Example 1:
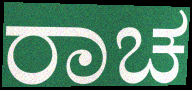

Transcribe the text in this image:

ರಾಚ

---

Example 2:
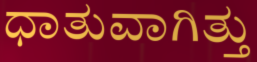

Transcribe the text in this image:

ಧಾತುವಾಗಿತ್ತು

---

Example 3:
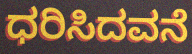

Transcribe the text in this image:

ಧರಿಸಿದವನೆ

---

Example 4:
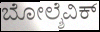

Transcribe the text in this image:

ಬೋಲ್ಶೆವಿಕ್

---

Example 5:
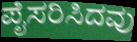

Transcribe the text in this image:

ಪೈಸರಿಸಿದವು